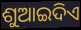
ଶୁଆଇଦିଏ